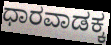
ಧಾರವಾಡಕ್ಕ